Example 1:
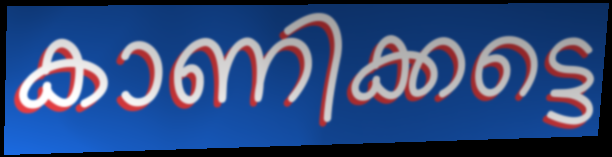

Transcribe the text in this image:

കാണിക്കട്ടെ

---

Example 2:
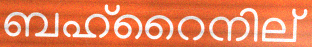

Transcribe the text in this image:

ബഹ്റൈനില്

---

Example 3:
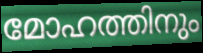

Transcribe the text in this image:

മോഹത്തിനും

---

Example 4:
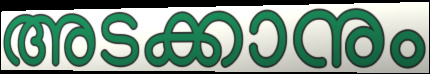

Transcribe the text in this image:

അടക്കാനും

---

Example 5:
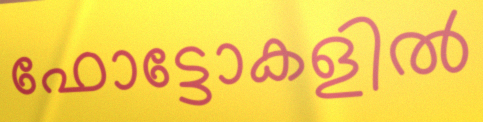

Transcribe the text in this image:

ഫോട്ടോകളിൽ